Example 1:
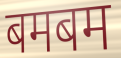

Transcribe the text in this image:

बमबम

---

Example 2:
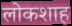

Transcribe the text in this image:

लोकशाह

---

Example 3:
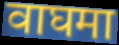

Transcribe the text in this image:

वाघमा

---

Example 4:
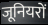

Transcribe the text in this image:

जूनियरों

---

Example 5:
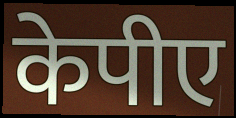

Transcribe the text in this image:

केपीए